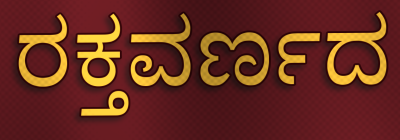
ರಕ್ತವರ್ಣದ